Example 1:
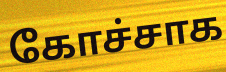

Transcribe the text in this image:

கோச்சாக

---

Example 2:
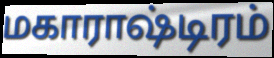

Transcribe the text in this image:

மகாராஷ்டிரம்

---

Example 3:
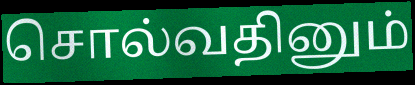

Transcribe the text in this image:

சொல்வதினும்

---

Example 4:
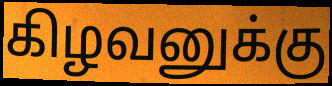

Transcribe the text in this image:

கிழவனுக்கு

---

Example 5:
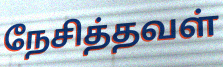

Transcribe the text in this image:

நேசித்தவள்